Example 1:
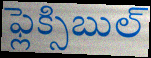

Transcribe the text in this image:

ఫ్లెక్సిబుల్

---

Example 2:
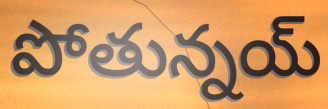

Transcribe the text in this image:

పోతున్నయ్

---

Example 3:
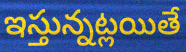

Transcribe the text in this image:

ఇస్తున్నట్లయితే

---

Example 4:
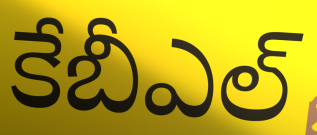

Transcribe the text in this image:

కేబీఎల్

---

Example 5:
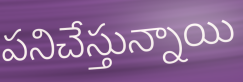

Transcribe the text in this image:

పనిచేస్తున్నాయి